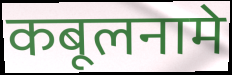
कबूलनामे